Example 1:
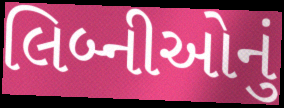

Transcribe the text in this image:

લિબ્નીઓનું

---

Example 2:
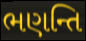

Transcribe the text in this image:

ભણન્તિ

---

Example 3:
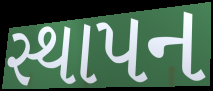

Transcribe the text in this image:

સ્થાપન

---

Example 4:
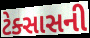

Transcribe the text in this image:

ટેક્સાસની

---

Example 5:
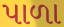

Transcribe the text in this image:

પાળા